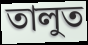
তালুত